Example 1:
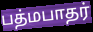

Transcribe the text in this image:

பத்மபாதர்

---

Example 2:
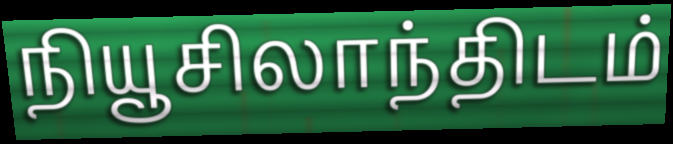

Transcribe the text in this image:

நியூசிலாந்திடம்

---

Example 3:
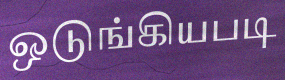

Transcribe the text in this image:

ஒடுங்கியபடி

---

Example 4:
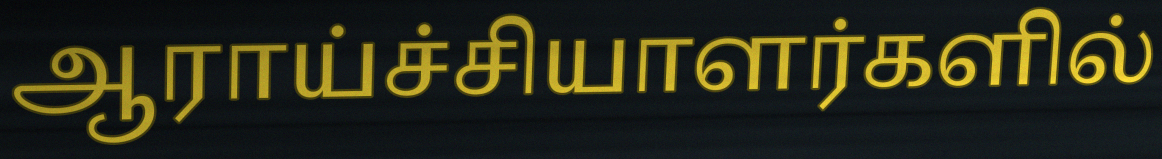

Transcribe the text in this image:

ஆராய்ச்சியாளர்களில்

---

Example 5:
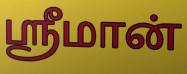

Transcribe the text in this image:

ஸ்ரீமான்